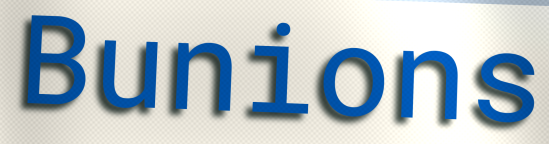
Bunions